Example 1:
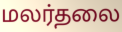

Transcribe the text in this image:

மலர்தலை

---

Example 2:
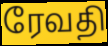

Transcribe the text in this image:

ரேவதி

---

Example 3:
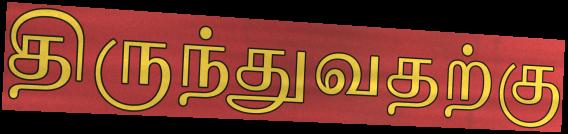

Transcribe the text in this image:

திருந்துவதற்கு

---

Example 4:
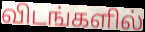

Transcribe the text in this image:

விடங்களில்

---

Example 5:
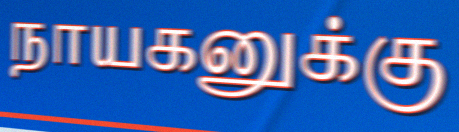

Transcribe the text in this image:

நாயகனுக்கு